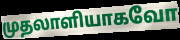
முதலாளியாகவோ